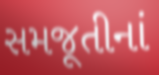
સમજૂતીનાં